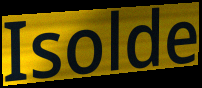
Isolde